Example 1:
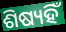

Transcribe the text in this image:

ଶିଷ୍ୟହିଁ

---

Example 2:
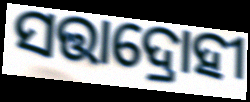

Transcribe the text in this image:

ସତ୍ତାଦ୍ରୋହୀ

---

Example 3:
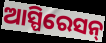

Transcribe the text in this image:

ଆସ୍ପିରେସନ୍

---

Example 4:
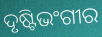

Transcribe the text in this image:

ଦୃଷ୍ଟିଭଂଗୀର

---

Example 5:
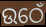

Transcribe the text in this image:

ଉଠେଁ